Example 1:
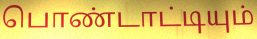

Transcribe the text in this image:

பொண்டாட்டியும்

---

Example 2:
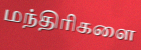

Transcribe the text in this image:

மந்திரிகளை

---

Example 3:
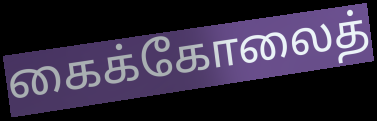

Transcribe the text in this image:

கைக்கோலைத்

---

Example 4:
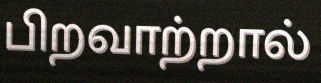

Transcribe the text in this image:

பிறவாற்றால்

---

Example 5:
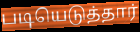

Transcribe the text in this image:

படியெடுத்தார்